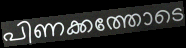
പിണക്കത്തോടെ